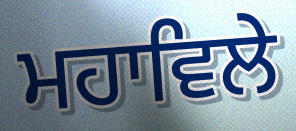
ਮਹਾਵਿਲੇ